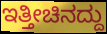
ಇತ್ತೀಚಿನದ್ದು